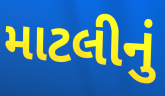
માટલીનું